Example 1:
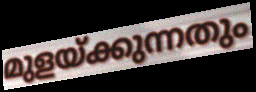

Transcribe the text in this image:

മുളയ്ക്കുന്നതും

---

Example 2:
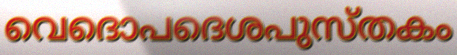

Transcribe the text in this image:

വെദൊപദെശപുസ്തകം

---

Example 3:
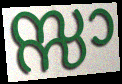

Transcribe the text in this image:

സ്സാ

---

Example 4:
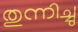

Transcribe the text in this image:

തുന്നിച്ചു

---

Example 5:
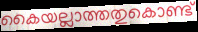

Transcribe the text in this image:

കൈയല്ലാത്തതുകൊണ്ട്